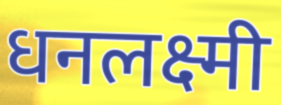
धनलक्ष्मी